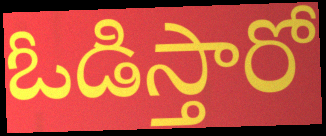
ఓడిస్తారో